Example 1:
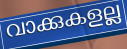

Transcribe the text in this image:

വാക്കുകളല്ല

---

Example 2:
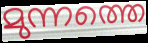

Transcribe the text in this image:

മുന്നത്തെ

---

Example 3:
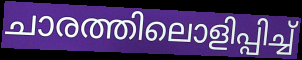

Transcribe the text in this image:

ചാരത്തിലൊളിപ്പിച്ച്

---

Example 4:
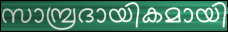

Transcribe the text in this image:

സാമ്പ്രദായികമായി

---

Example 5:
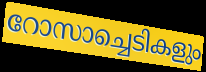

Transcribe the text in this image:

റോസാച്ചെടികളും